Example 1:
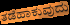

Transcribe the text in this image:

ತಡೆಹಾಕುವುದು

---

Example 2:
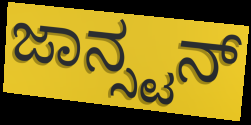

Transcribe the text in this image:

ಜಾನ್ಸ್ಟನ್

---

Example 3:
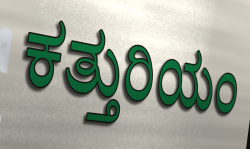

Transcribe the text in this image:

ಕತ್ತುರಿಯಂ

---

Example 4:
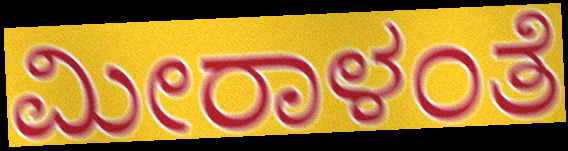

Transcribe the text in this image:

ಮೀರಾಳಂತೆ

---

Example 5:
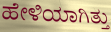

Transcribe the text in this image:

ಹೇಳಿಯಾಗಿತ್ತು